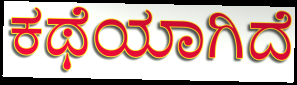
ಕಥೆಯಾಗಿದೆ